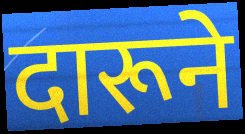
दारूने